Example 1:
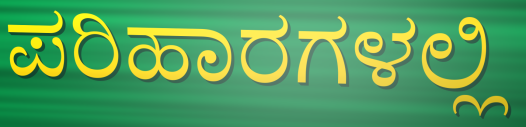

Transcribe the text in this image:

ಪರಿಹಾರಗಳಲ್ಲಿ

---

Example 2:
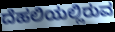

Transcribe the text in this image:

ದೆಹಲಿಯಲ್ಲಿರುವ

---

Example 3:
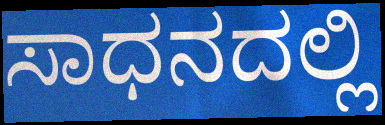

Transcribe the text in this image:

ಸಾಧನದಲ್ಲಿ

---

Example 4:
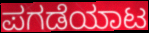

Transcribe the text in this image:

ಪಗಡೆಯಾಟ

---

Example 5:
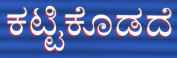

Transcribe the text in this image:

ಕಟ್ಟಿಕೊಡದೆ